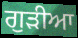
ਗੁਡ਼ੀਆ